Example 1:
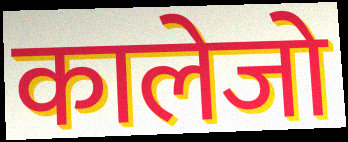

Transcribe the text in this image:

कालेजो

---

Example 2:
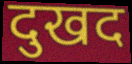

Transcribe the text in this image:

दुखद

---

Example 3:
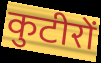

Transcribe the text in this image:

कुटीरों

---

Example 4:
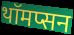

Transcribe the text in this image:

थॉमप्सन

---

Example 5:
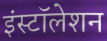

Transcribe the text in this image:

इंस्टॉलेशन